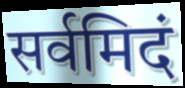
सर्वमिदं